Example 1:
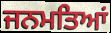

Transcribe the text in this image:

ਜਨਮਤਿਆਂ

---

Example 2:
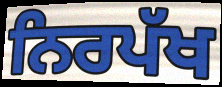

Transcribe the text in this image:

ਨਿਰਪੱਖ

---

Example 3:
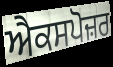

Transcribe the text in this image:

ਐਕਸਪੋਜ਼ਰ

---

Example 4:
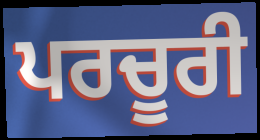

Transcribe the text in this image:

ਪਰਚੂਰੀ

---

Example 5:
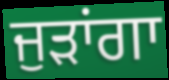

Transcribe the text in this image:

ਜੁੜਾਂਗਾ